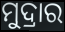
ମୁଦ୍ରାର